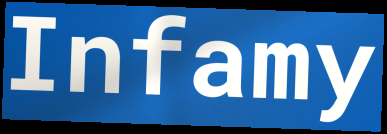
Infamy